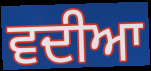
ਵਦੀਆ